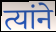
त्यांने